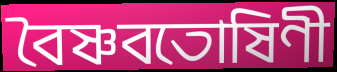
বৈষ্ণবতোষিণী